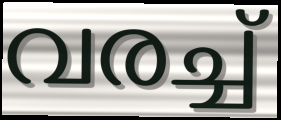
വരച്ച്